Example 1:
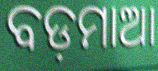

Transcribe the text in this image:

ବଡ଼ମାଆ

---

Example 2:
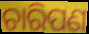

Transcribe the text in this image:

ଚାରିପଣ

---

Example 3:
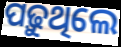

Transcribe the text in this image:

ପଢ଼ୁଥିଲେ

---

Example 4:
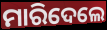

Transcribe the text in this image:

ମାରିଦେଲେ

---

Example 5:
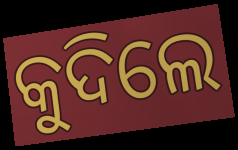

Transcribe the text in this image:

କୁଦିଲେ